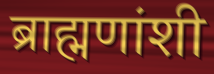
ब्राह्मणांशी